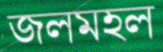
জলমহল